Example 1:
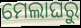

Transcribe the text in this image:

ମେଲାଘରୁ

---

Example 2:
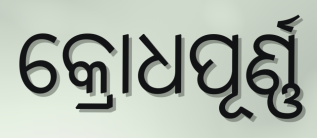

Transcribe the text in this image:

କ୍ରୋଧପୂର୍ଣ୍ଣ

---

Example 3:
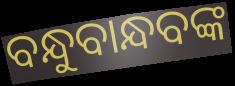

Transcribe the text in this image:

ବନ୍ଧୁବାନ୍ଧବଙ୍କ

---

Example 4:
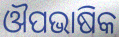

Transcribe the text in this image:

ଔପଭାଷିକ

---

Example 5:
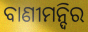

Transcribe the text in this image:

ବାଣୀମନ୍ଦିର